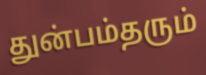
துன்பம்தரும்